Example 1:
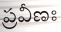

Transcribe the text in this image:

ప్రవీణః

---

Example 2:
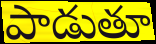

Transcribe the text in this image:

పాడుతూ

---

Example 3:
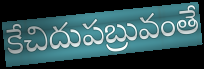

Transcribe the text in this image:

కేచిదుపబ్రువంతే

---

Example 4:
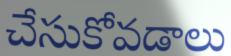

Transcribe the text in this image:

చేసుకోవడాలు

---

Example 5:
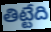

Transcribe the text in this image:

తిట్టేది